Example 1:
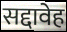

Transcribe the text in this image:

सद्दावेह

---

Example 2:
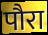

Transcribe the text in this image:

पौरा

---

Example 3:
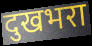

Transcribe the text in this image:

दुखभरा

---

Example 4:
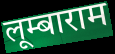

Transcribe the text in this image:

लूम्बाराम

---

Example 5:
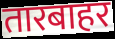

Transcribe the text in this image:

तारबाहर